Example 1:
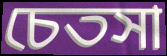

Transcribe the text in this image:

চেতসা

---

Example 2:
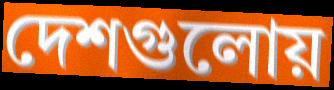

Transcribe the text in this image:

দেশগুলোয়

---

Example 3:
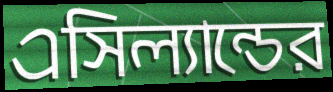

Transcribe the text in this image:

এসিল্যান্ডের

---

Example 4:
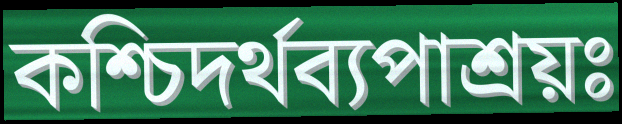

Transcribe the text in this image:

কশ্চিদর্থব্যপাশ্রয়ঃ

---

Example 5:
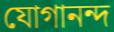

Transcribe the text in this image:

যোগানন্দ